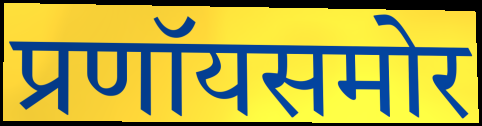
प्रणॉयसमोर